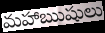
మహాఋషులు